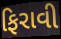
ફિરાવી